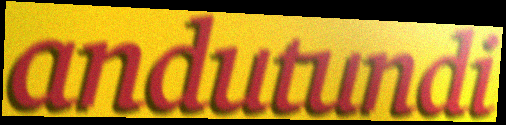
andutundi